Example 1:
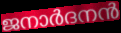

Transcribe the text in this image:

ജനാർദനൻ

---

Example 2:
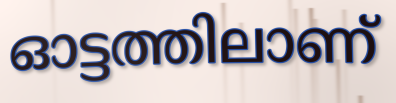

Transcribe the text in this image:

ഓട്ടത്തിലാണ്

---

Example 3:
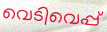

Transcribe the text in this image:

വെടിവെപ്പ്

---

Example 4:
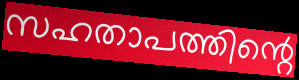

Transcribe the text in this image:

സഹതാപത്തിന്റെ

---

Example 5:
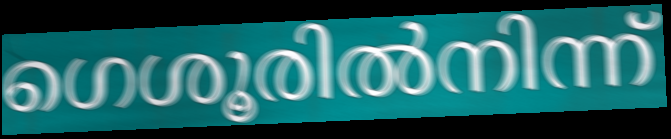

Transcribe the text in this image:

ഗെശൂരിൽനിന്ന്